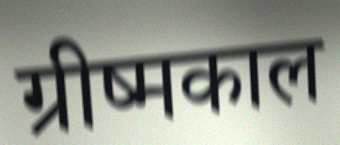
ग्रीष्मकाल